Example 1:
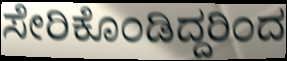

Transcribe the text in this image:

ಸೇರಿಕೊಂಡಿದ್ದರಿಂದ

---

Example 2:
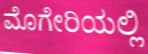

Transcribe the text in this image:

ಮೊಗೇರಿಯಲ್ಲಿ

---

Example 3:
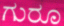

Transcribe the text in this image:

ಗುರೂ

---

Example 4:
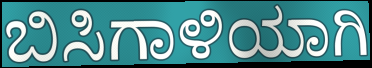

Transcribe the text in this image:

ಬಿಸಿಗಾಳಿಯಾಗಿ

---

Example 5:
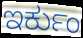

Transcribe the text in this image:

ಇರ್ಕುಂ